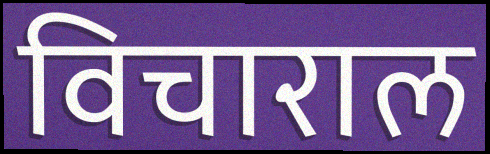
विचाराल